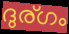
ദുര്ഗം